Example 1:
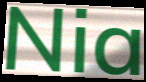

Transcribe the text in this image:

Nia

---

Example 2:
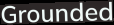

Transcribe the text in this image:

Grounded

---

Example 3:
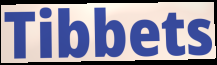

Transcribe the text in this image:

Tibbets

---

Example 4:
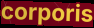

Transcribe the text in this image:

corporis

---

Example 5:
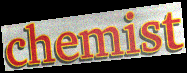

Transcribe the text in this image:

chemist